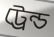
ট্রেন্ড